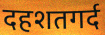
दहशतगर्द